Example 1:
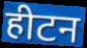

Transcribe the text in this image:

हीटन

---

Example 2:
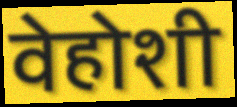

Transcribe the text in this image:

वेहोशी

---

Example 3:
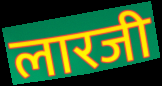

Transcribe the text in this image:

लारजी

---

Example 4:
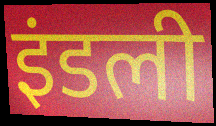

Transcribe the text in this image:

इंडली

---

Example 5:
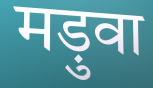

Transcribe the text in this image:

मड़ुवा